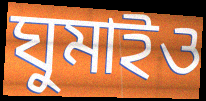
ঘুমাইও